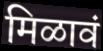
मिळावं